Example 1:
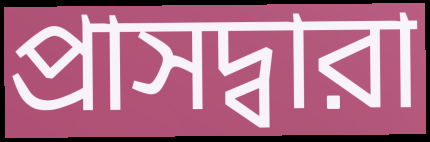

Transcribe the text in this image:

প্রাসদ্বারা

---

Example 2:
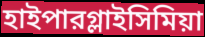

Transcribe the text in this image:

হাইপারগ্লাইসিমিয়া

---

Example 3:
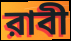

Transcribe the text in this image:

রাবী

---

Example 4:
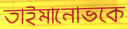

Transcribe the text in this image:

তাইমানোভকে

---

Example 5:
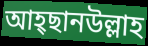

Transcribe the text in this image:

আহ্ছানউল্লাহ